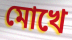
মোখে